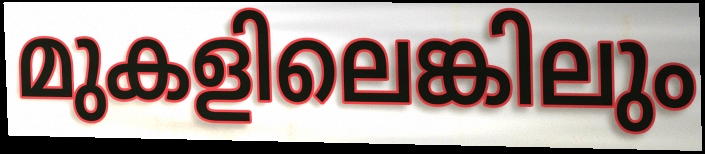
മുകളിലെങ്കിലും